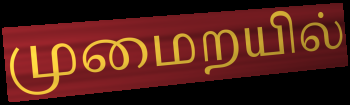
முமைறயில்